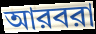
আরবরা